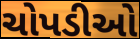
ચોપડીઓ